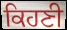
ਕਿਹਣੀ